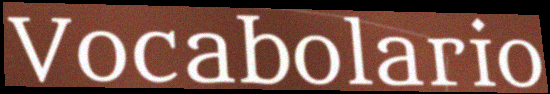
Vocabolario